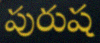
పురుష